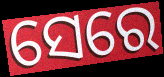
ସେରେ